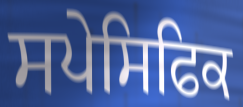
ਸਪੇਸਿਫਿਕ